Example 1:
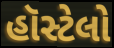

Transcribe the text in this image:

હૉસ્ટેલો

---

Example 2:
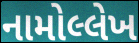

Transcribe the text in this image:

નામોલ્લેખ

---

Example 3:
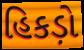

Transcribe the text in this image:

હિકડ઼ો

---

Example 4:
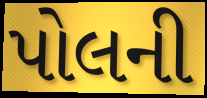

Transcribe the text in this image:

પોલની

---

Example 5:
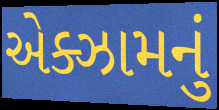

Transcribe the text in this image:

એક્ઝામનું